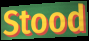
Stood